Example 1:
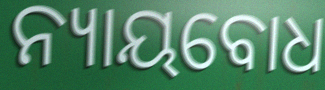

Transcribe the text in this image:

ନ୍ୟାୟବୋଧ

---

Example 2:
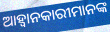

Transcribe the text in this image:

ଆହ୍ଵାନକାରୀମାନଙ୍କ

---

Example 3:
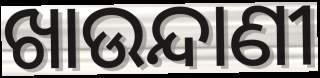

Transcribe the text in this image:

ଖାଉନ୍ଦାଣୀ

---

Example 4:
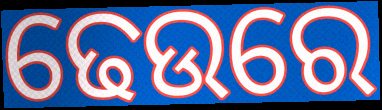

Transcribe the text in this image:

ଢେଉରେ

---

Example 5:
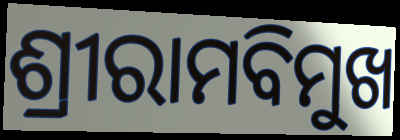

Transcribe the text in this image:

ଶ୍ରୀରାମବିମୁଖ